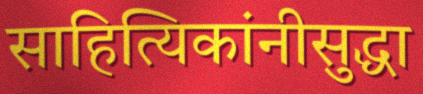
साहित्यिकांनीसुद्धा